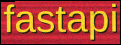
fastapi